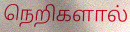
நெறிகளால்